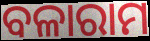
ବଳାରାମ